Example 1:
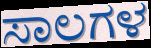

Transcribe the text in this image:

ಸಾಲಗಳ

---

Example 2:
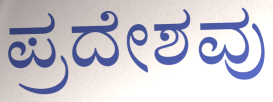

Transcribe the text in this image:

ಪ್ರದೇಶವು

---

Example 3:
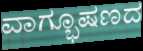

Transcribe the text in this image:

ವಾಗ್ಭೂಷಣದ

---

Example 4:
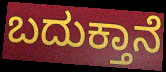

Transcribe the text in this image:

ಬದುಕ್ತಾನೆ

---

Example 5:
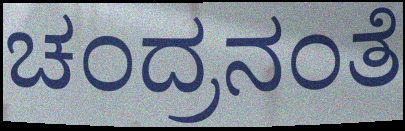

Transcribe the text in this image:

ಚಂದ್ರನಂತೆ